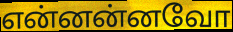
என்னன்னவோ